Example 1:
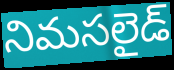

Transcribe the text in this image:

నిమసలైడ్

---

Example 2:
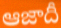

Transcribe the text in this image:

ఆజాదీ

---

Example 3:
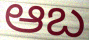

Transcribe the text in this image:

ఆబ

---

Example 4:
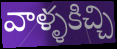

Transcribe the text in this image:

వాళ్ళకిచ్చి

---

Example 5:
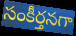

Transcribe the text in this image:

సంకీర్తనగా